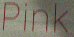
Pink